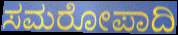
ಸಮರೋಪಾದಿ